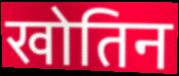
खोतिन